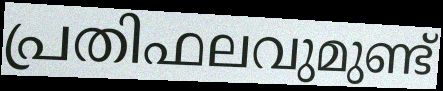
പ്രതിഫലവുമുണ്ട്